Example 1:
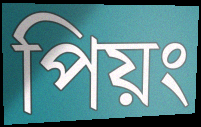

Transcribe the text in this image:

পিয়ং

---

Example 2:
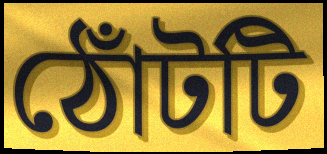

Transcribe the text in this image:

ঠোঁটটি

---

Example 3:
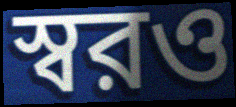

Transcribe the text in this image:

স্বরও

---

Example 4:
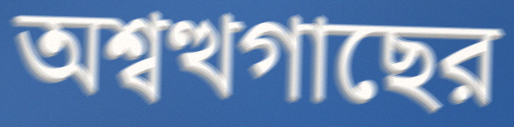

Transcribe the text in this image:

অশ্বত্থগাছের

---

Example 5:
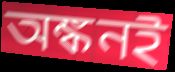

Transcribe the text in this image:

অঙ্কনই